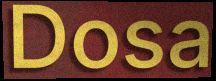
Dosa